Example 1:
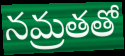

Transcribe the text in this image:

నమ్రతతో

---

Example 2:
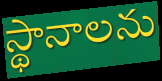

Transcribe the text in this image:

స్థానాలను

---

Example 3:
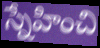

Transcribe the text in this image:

స్నేహించి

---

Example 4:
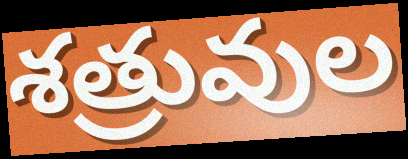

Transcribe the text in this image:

శత్రువుల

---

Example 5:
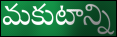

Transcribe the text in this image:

మకుటాన్ని